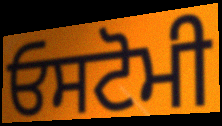
ਓਸਟੋਮੀ